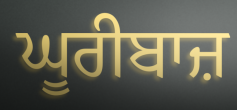
ਘੂਰੀਬਾਜ਼